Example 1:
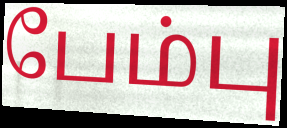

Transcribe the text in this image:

பேம்பு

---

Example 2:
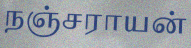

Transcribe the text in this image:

நஞ்சராயன்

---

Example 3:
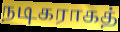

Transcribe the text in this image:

நடிகராகத்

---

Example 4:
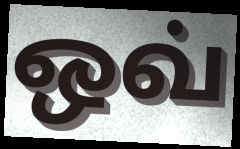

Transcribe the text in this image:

ஒவ்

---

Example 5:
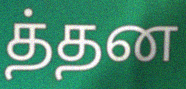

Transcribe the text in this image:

த்தன